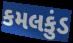
કમલકુંડ